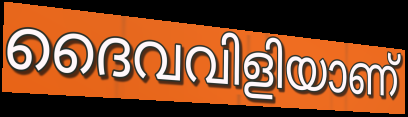
ദൈവവിളിയാണ്